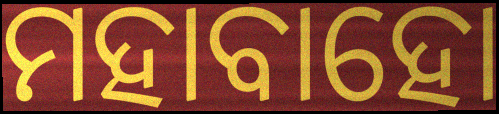
ମହାବାହୋ